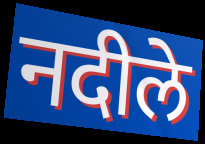
नदीले